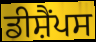
ਡੀਸ਼ੈਂਪਸ